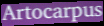
Artocarpus